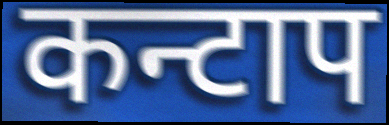
कन्टाप